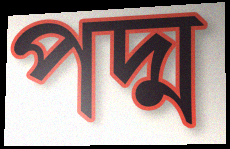
পদ্ম